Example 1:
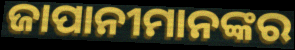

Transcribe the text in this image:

ଜାପାନୀମାନଙ୍କର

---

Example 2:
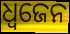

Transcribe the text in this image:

ଧ୍ଵଜେନ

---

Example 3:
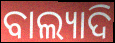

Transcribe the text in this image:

ବାଲ୍ୟାଦି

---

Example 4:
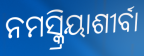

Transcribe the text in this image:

ନମସ୍କ୍ରିୟାଶୀର୍ବା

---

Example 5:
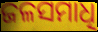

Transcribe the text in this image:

ଜଳସମାଧି